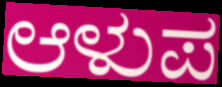
ಆಳುಪ